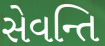
સેવન્તિ